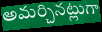
అమర్చినట్లుగా